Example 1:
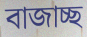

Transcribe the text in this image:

বাজাচ্ছ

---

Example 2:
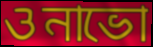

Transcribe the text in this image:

ওনাভো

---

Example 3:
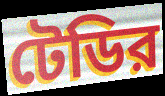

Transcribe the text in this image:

টেডির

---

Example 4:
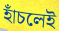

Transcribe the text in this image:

হাঁচলেই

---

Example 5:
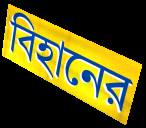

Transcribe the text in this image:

বিহানের